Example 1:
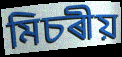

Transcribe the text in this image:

মিচৰীয়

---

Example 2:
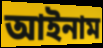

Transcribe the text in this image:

আইনাম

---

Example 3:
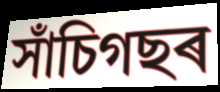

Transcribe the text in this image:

সাঁচিগছৰ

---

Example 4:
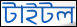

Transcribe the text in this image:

টাইটল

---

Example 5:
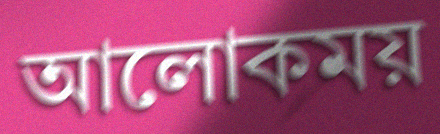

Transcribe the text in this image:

আলোকময়